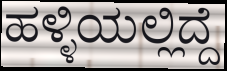
ಹಳ್ಳಿಯಲ್ಲಿದ್ದೆ